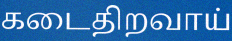
கடைதிறவாய்